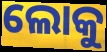
ଲୋକୁ